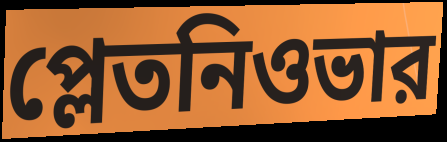
প্লেতনিওভার